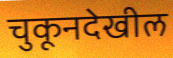
चुकूनदेखील